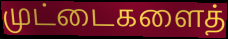
முட்டைகளைத்